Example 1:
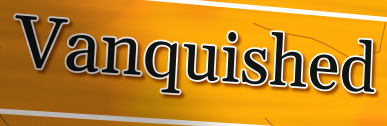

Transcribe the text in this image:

Vanquished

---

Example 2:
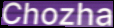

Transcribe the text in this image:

Chozha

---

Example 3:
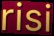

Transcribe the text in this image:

risi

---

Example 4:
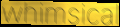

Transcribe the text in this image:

whimsical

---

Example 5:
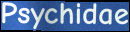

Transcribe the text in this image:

Psychidae